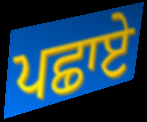
ਪਛਾਏ